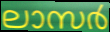
ലാസർ